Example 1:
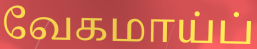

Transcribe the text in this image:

வேகமாய்ப்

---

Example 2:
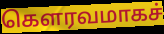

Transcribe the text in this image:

கௌரவமாகச்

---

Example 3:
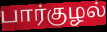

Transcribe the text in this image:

பார்குழல்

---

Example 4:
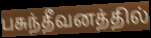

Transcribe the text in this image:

பசுந்தீவனத்தில்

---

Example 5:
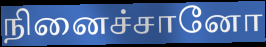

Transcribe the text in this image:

நினைச்சானோ